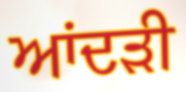
ਆਂਦੜੀ